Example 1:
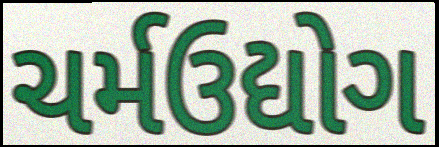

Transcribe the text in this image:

ચર્મઉદ્યોગ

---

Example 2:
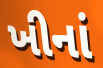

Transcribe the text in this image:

ખીનાં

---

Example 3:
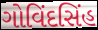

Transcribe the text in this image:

ગોવિંદસિંહ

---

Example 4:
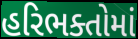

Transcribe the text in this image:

હરિભક્તોમાં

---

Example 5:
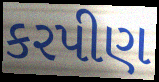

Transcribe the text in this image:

કરપીણ